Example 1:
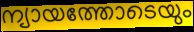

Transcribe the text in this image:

ന്യായത്തോടെയും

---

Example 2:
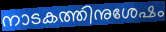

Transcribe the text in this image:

നാടകത്തിനുശേഷം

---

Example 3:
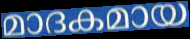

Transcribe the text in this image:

മാദകമായ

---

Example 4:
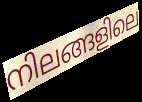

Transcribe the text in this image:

നിലങ്ങളിലെ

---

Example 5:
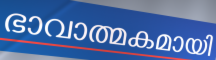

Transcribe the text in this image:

ഭാവാത്മകമായി